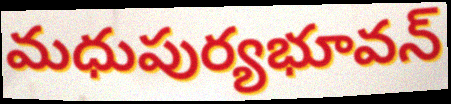
మధుపుర్యభూవన్